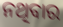
ନଥିବାର